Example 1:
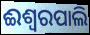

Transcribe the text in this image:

ଈଶ୍ୱରପାଲି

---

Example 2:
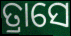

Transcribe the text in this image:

ତ୍ରାସେ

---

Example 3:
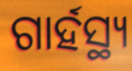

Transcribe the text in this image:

ଗାର୍ହସ୍ଥ୍ୟ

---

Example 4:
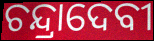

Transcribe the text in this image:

ଚନ୍ଦ୍ରାଦେବୀ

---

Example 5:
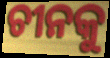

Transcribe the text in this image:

ଚୀନକୁ